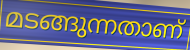
മടങ്ങുന്നതാണ്